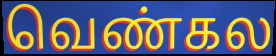
வெண்கல